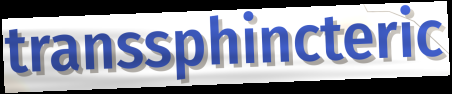
transsphincteric